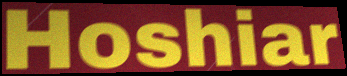
Hoshiar